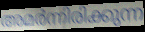
അമർന്നിരിക്കുന്ന